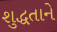
શુદ્ધતાને